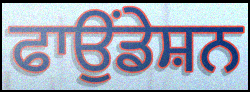
ਫਾਉਂਡੇਸ਼ਨ